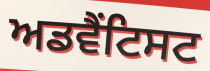
ਅਡਵੈਂਟਿਸਟ